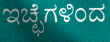
ಇಚ್ಛೆಗಳಿಂದ